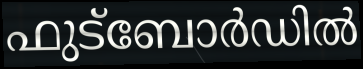
ഫുട്ബോർഡിൽ